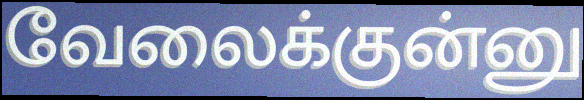
வேலைக்குன்னு